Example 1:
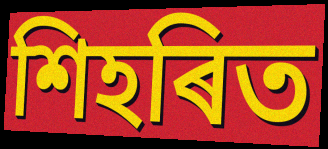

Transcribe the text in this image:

শিহৰিত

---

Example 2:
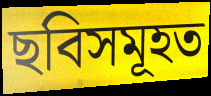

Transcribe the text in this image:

ছবিসমূহত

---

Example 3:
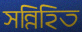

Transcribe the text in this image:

সন্নিহিত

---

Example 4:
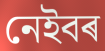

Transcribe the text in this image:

নেইবৰ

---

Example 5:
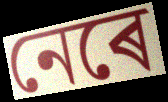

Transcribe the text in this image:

নেৰে